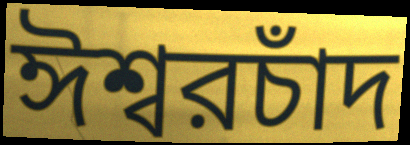
ঈশ্বরচাঁদ